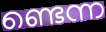
ണ്ടെന്ന